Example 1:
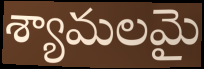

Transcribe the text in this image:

శ్యామలమై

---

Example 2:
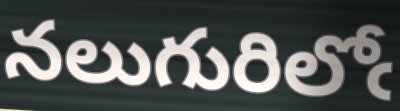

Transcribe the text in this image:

నలుగురిలోఁ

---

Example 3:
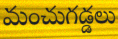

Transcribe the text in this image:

మంచుగడ్డలు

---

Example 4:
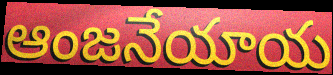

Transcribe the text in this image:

ఆంజనేయాయ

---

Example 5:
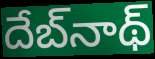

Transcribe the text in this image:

దేబ్‌నాథ్